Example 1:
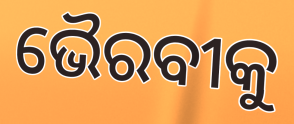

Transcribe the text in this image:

ଭୈରବୀକୁ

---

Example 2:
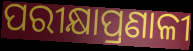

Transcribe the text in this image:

ପରୀକ୍ଷାପ୍ରଣାଳୀ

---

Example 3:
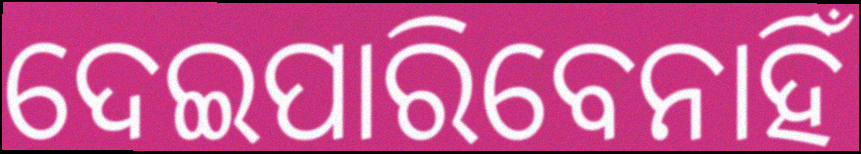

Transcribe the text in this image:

ଦେଇପାରିବେନାହିଁ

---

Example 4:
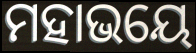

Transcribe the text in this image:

ମହାଭୟେ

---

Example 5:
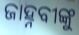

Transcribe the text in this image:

ଜାହ୍ନବୀଙ୍କୁ